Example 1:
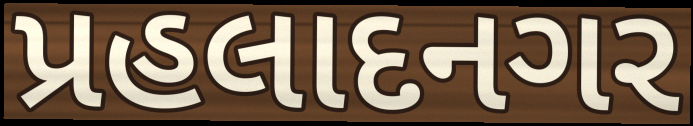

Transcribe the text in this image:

પ્રહલાદનગર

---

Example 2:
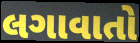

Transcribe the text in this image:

લગાવાતો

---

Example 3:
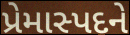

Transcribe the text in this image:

પ્રેમાસ્પદને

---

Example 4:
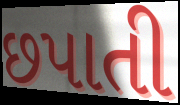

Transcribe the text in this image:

છપાતી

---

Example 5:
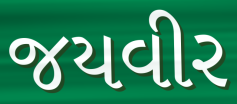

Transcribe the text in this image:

જયવીર